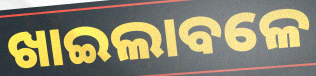
ଖାଇଲାବଳେ